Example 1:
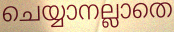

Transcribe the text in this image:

ചെയ്യാനല്ലാതെ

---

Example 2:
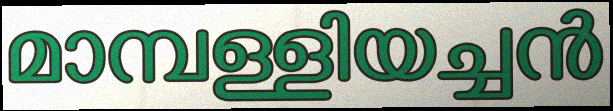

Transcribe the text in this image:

മാമ്പള്ളിയച്ചൻ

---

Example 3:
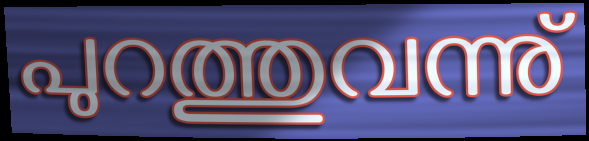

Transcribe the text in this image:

പുറത്തുവന്നു്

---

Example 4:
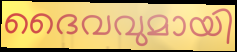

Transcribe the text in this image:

ദൈവവുമായി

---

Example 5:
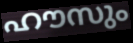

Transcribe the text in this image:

ഹൗസും